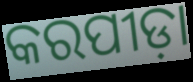
କରପୀଡ଼ା